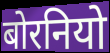
बोरनियो